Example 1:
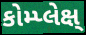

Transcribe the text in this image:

કોમ્પ્લેક્ષ્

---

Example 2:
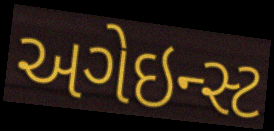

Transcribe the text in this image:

અગેઇન્સ્ટ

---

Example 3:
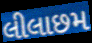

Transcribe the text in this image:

લીલાછમ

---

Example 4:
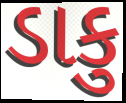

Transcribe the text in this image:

ડાકુ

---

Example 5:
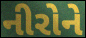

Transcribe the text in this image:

નીરોને